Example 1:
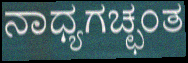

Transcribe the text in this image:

ನಾಧ್ಯಗಚ್ಛಂತ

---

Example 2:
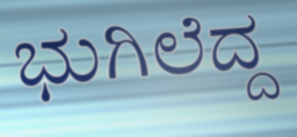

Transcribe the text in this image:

ಭುಗಿಲೆದ್ದ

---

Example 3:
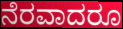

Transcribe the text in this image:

ನೆರವಾದರೂ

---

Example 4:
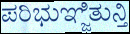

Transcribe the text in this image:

ಪರಿಭುಞ್ಜಿತುನ್ತಿ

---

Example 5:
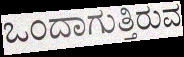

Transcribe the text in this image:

ಒಂದಾಗುತ್ತಿರುವ